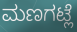
ಮಣಗಟ್ಲೆ